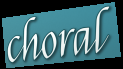
choral